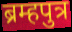
ब्रम्हपुत्र